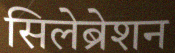
सिलेब्रेशन